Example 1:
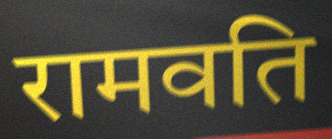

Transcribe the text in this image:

रामवति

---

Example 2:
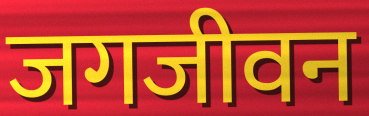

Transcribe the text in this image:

जगजीवन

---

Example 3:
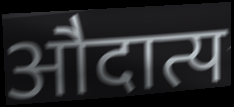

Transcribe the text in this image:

औदात्य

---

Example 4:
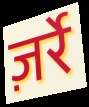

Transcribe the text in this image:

ज़र्रे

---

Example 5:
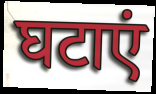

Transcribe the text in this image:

घटाएं